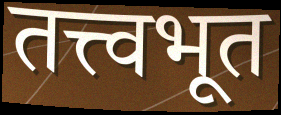
तत्त्वभूत